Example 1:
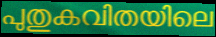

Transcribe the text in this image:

പുതുകവിതയിലെ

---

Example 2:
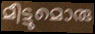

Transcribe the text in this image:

മീട്ടുമൊരു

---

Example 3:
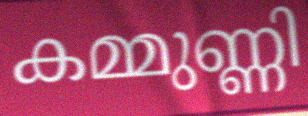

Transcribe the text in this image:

കമ്മുണ്ണി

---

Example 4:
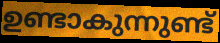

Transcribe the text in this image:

ഉണ്ടാകുന്നുണ്ട്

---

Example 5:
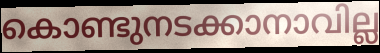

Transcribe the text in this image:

കൊണ്ടുനടക്കാനാവില്ല